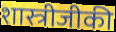
शास्त्रीजीकी